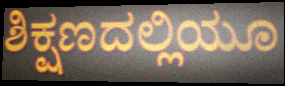
ಶಿಕ್ಷಣದಲ್ಲಿಯೂ